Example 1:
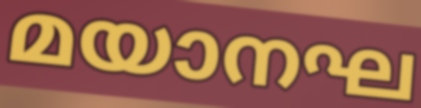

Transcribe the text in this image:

മയാനഘ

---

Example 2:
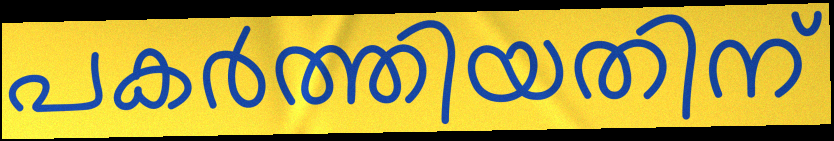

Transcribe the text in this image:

പകർത്തിയതിന്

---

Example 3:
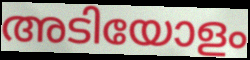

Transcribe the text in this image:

അടിയോളം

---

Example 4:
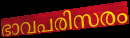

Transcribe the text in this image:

ഭാവപരിസരം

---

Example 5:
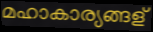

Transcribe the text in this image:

മഹാകാര്യങ്ങള്